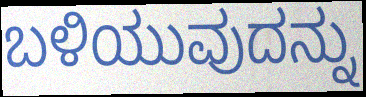
ಬಳಿಯುವುದನ್ನು